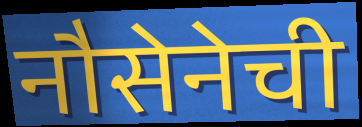
नौसेनेची